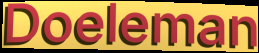
Doeleman